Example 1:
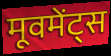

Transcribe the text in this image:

मूवमेंट्स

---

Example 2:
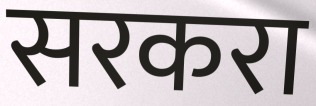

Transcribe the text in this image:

सरकरा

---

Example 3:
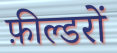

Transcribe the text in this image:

फ़ील्डरों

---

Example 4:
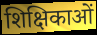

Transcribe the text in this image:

शिक्षिकाओं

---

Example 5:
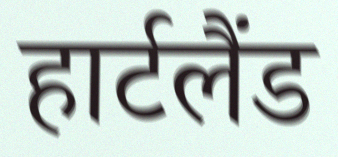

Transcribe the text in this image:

हार्टलैंड